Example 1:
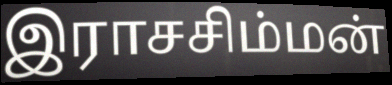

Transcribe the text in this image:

இராசசிம்மன்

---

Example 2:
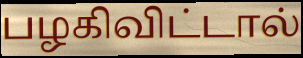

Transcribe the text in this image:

பழகிவிட்டால்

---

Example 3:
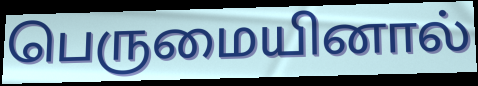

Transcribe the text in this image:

பெருமையினால்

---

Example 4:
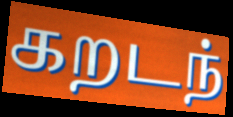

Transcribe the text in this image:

கறடந்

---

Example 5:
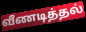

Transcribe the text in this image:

வீணடித்தல்